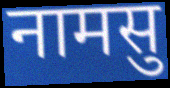
नामसु